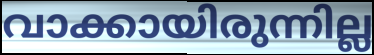
വാക്കായിരുന്നില്ല